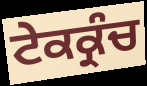
ਟੇਕਕ੍ਰੰਚ